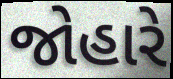
જોહારે